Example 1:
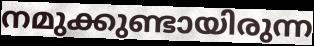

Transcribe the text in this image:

നമുക്കുണ്ടായിരുന്ന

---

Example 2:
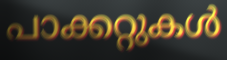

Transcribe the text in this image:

പാക്കറ്റുകൾ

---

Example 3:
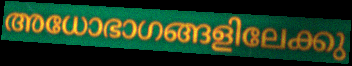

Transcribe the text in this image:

അധോഭാഗങ്ങളിലേക്കു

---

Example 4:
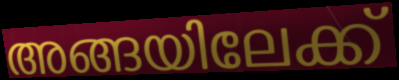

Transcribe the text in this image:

അങ്ങയിലേക്ക്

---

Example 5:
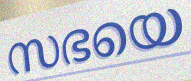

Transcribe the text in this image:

സഭയെ